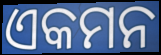
ଏକମନ